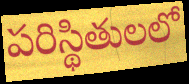
పరిస్థితులలో